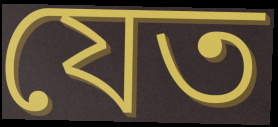
যেত